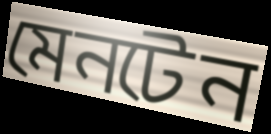
মেনটেন